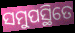
ସମୁପସ୍ଥିତେ